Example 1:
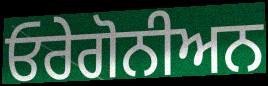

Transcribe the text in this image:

ਓਰੇਗੋਨੀਅਨ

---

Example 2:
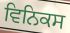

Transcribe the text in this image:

ਵਿਨਿਕਸ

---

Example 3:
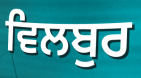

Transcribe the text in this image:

ਵਿਲਬੁਰ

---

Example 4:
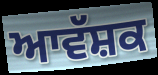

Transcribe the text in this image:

ਆਵੱਸ਼ਕ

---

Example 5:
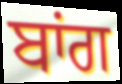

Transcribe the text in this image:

ਬਾਂਗ